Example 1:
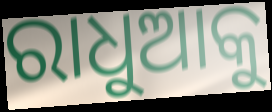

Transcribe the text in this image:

ରାଧୁଆକୁ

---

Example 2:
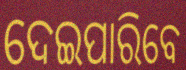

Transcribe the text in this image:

ଦେଇପାରିବେ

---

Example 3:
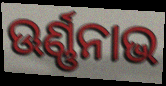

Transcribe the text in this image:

ଊର୍ଣ୍ଣନାଭ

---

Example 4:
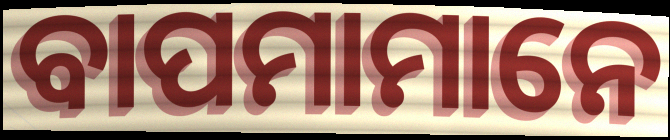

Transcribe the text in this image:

ବାପମାମାନେ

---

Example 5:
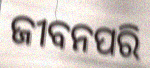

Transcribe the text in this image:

ଜୀବନପରି